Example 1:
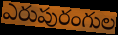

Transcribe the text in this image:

ఎరుపురంగుల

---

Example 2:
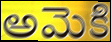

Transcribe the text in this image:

అమెకి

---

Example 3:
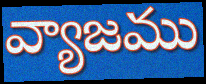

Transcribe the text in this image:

వ్యాజము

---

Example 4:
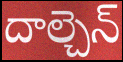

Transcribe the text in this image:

దాల్చెన్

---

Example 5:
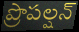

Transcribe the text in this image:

ప్రొపల్షన్